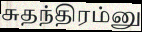
சுதந்திரம்னு